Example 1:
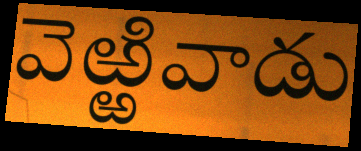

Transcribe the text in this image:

వెఱ్ఱివాడు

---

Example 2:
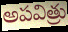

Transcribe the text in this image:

అపవిత్రు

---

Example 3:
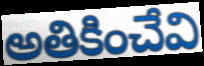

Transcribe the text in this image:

అతికించేవి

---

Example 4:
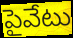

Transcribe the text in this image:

పైవేటు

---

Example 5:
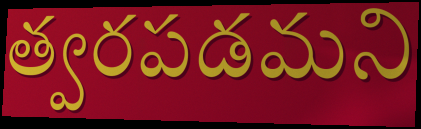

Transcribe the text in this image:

త్వరపడమని